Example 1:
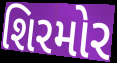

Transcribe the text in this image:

શિરમોર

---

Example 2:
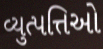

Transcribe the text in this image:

વ્યુત્પત્તિઓ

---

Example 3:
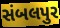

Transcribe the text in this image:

સંબલપુર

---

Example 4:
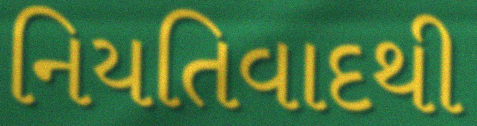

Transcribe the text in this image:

નિયતિવાદથી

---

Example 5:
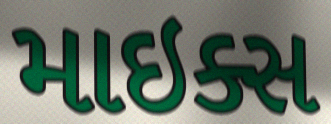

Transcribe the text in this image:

માઇક્સ